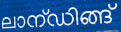
ലാന്ഡിങ്ങ്